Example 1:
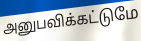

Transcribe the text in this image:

அனுபவிக்கட்டுமே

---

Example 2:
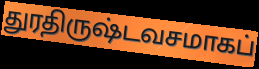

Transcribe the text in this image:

துரதிருஷ்டவசமாகப்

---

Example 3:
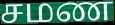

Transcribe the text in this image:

சமண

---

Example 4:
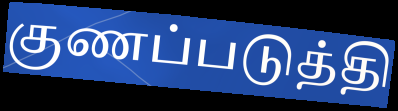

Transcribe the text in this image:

குணப்படுத்தி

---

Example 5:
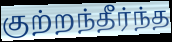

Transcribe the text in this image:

குற்றந்தீர்ந்த